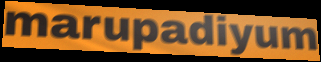
marupadiyum